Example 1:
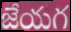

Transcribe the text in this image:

జేయగ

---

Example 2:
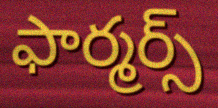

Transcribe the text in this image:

ఫార్మర్స్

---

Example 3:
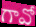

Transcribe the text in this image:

గావో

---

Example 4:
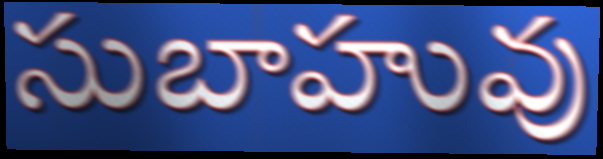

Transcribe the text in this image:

సుబాహువు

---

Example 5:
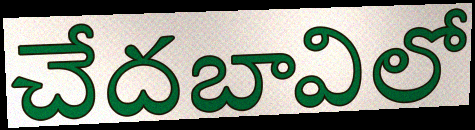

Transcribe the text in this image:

చేదబావిలో